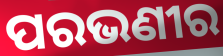
ପରଭଣୀର